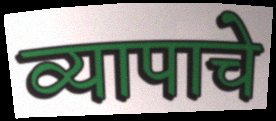
व्यापाचे